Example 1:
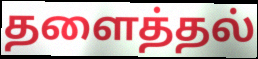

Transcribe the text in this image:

தளைத்தல்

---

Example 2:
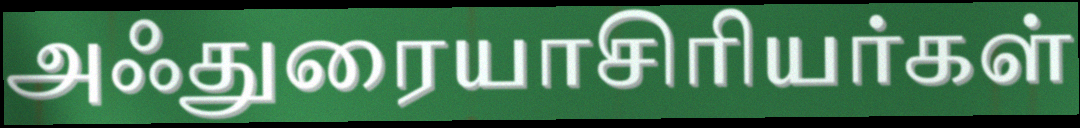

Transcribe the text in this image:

அஃதுரையாசிரியர்கள்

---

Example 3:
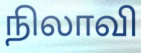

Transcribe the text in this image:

நிலாவி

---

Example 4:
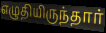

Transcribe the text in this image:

எழுதியிருந்தார்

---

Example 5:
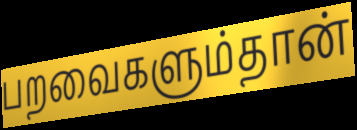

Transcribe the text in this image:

பறவைகளும்தான்